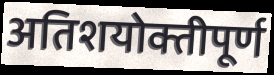
अतिशयोक्‍तीपूर्ण